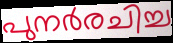
പുനർരചിച്ച